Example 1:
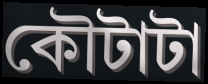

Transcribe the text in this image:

কৌটাটা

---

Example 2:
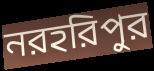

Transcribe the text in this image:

নরহরিপুর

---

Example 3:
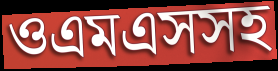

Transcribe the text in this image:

ওএমএসসহ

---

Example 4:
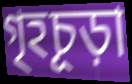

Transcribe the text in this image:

গৃহচূড়া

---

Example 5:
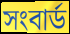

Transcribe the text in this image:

সংবার্ড